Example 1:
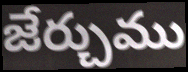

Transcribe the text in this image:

జేర్చుము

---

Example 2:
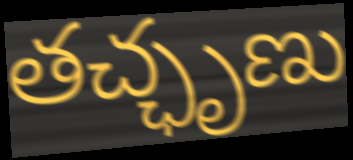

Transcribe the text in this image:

తచ్ఛృణు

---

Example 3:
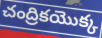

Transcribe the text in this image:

చంద్రికయొక్క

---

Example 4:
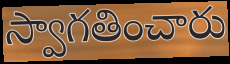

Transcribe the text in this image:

స్వాగతించారు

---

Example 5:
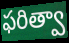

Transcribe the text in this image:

ఫరిత్వా